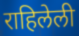
राहिलेली